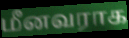
மீனவராக